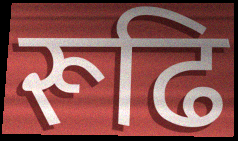
रूढि